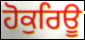
ਹੋਕੁਰਿਊ